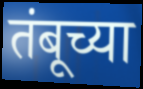
तंबूच्या